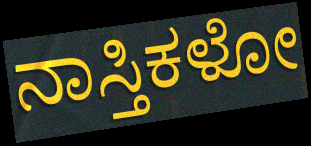
ನಾಸ್ತಿಕಳೋ